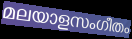
മലയാളസംഗീതം